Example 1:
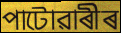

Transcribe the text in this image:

পাটোৱাৰীৰ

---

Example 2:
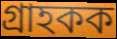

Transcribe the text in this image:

গ্ৰাহকক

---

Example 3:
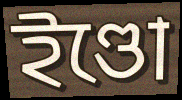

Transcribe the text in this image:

ইণ্ডো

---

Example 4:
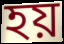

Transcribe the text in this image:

হয়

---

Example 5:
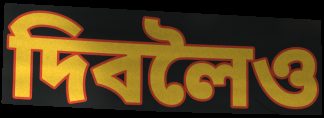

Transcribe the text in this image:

দিবলৈও